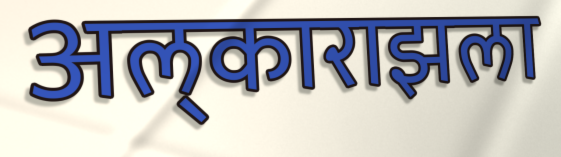
अल्काराझला